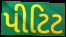
પીટિટ